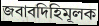
জবাবদিহিমূলক